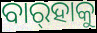
ବାର୍‍ହାକୁ